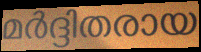
മർദ്ദിതരായ